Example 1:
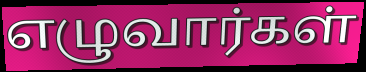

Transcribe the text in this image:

எழுவார்கள்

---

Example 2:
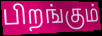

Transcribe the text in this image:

பிறங்கும்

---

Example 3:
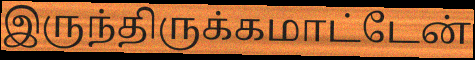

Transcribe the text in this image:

இருந்திருக்கமாட்டேன்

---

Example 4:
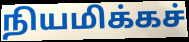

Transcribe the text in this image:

நியமிக்கச்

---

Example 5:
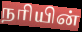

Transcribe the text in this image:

நரியின்